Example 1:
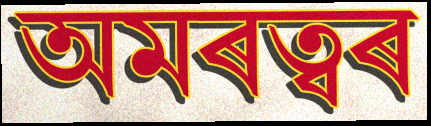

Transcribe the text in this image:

অমৰত্বৰ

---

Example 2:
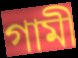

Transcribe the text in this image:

গামী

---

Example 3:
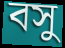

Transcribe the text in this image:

বসু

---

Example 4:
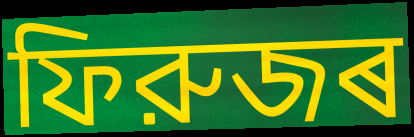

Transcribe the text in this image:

ফিৰুজৰ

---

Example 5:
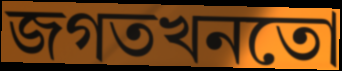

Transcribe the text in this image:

জগতখনতো